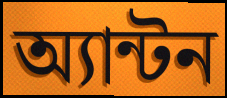
অ্যান্টন